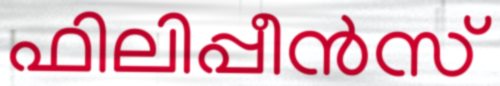
ഫിലിപ്പീൻസ്